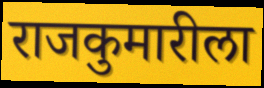
राजकुमारीला